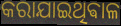
କରାଯାଇଥିଵାଳ